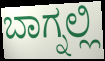
ಬಾಗ್ನಲ್ಲಿ